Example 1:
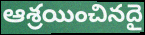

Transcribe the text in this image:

ఆశ్రయించినదై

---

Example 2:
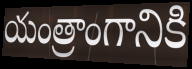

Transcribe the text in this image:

యంత్రాంగానికి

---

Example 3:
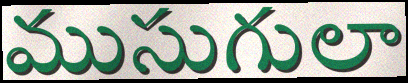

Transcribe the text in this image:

ముసుగులా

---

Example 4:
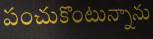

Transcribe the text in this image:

పంచుకొంటున్నాను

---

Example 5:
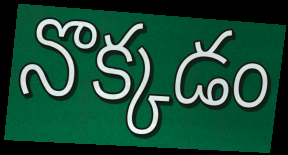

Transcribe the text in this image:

నొక్కడం